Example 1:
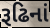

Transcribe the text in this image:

રૂઢિનાં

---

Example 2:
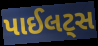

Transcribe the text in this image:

પાઈલટ્સ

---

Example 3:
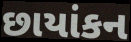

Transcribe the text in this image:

છાયાંકન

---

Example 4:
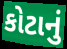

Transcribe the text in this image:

કોટાનું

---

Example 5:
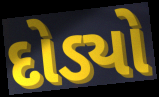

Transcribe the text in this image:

દોડ્યો